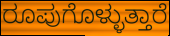
ರೂಪುಗೊಳ್ಳುತ್ತಾರೆ